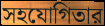
সহযোগিতার